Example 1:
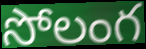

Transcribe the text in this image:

సోలంగ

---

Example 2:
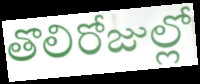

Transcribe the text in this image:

తొలిరోజుల్లో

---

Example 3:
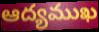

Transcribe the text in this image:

ఆద్యముఖ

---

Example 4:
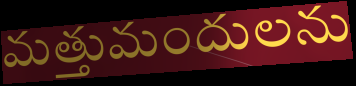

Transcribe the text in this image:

మత్తుమందులను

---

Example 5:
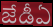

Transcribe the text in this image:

జేడీఏ